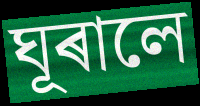
ঘূৰালে